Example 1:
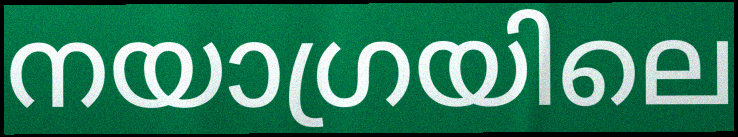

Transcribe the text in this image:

നയാഗ്രയിലെ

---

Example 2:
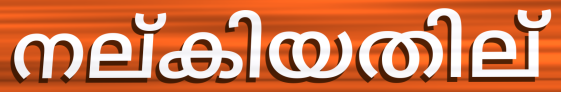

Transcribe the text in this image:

നല്കിയതില്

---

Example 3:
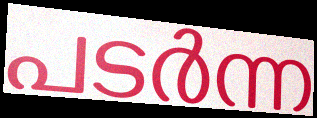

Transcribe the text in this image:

പടർന്ന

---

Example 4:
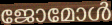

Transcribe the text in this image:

ജോമോൾ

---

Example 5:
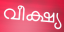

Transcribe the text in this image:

വീക്ഷ്യ